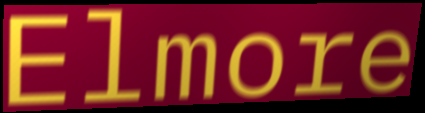
Elmore